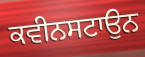
ਕਵੀਨਸਟਾਉਨ